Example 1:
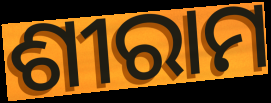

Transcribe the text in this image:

ଶୀରାମ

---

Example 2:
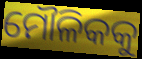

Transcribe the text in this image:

ମୌଳିକକୁ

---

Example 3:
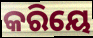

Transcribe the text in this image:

କରିୟେ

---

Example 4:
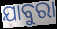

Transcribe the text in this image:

ଯାବୁରା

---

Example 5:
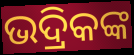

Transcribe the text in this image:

ଭଦ୍ରିକଙ୍କ